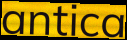
antica